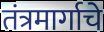
तंत्रमार्गाचे